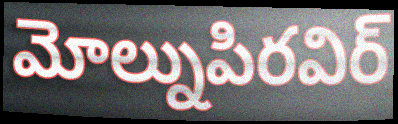
మోల్నుపిరవిర్